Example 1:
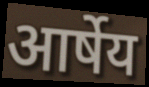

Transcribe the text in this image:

आर्षेय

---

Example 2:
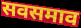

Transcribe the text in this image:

सवसमाव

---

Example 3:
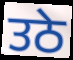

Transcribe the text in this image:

उठे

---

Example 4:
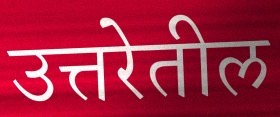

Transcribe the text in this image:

उत्तरेतील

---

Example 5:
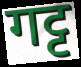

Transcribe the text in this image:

गट्ट